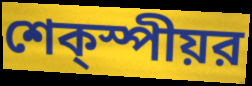
শেক্স্পীয়র